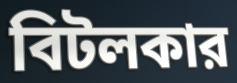
বিটলকার